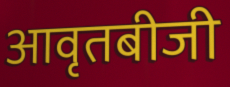
आवृतबीजी